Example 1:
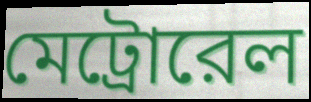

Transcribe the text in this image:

মেট্রোরেল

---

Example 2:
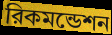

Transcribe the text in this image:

রিকমন্ডেশন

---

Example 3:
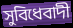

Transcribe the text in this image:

সুবিধেবাদী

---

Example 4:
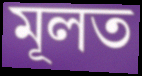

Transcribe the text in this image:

মূলত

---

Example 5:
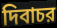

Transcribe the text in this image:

দিবাচর